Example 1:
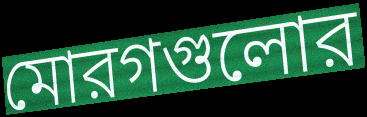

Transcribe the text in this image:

মোরগগুলোর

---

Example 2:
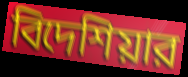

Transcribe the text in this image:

বিদেশিয়ার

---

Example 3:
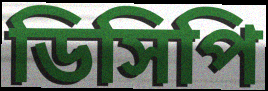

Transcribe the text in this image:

ডিসিপি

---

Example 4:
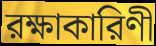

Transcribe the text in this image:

রক্ষাকারিণী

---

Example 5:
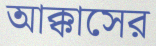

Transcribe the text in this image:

আক্কাসের